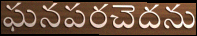
ఘనపరచెదను